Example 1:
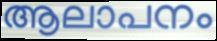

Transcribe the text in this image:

ആലാപനം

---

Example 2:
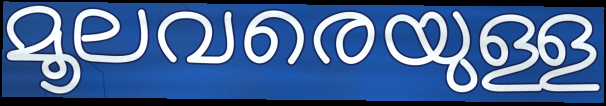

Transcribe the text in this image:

മൂലവരെയുള്ള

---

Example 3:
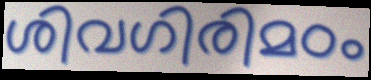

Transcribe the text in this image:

ശിവഗിരിമഠം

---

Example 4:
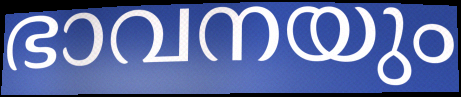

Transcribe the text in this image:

ഭാവനയും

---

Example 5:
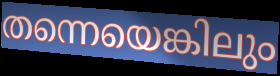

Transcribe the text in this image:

തന്നെയെങ്കിലും